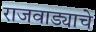
राजवाड्याचे